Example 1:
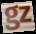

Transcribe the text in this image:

gz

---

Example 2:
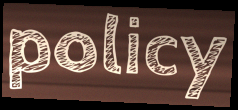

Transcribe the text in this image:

policy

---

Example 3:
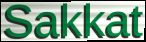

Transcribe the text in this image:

Sakkat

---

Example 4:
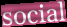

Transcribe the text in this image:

social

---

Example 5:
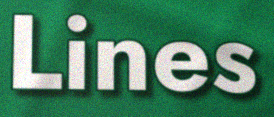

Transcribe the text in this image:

Lines